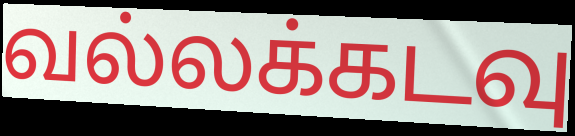
வல்லக்கடவு